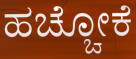
ಹಚ್ಚೋಕೆ